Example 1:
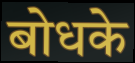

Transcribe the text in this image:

बोधके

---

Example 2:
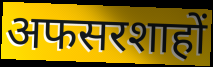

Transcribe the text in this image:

अफसरशाहों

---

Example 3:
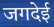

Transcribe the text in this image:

जगदेई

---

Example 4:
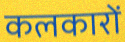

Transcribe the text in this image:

कलकारों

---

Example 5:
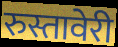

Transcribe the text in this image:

रुस्तावेरी